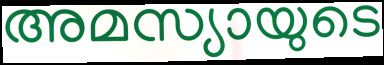
അമസ്യായുടെ